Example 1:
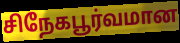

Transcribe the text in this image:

சிநேகபூர்வமான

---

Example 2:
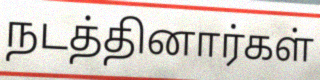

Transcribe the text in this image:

நடத்தினார்கள்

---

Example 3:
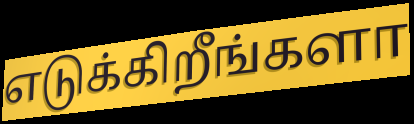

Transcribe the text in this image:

எடுக்கிறீங்களா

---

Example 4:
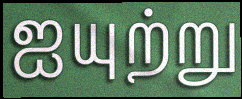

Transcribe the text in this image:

ஐயுற்று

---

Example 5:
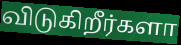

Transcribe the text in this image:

விடுகிறீர்களா